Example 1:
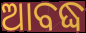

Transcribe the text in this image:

ଆବଦ୍ଧ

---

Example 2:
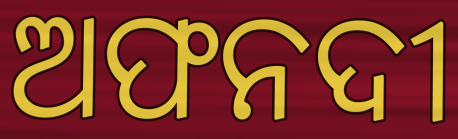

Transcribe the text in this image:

ଅଫନଦୀ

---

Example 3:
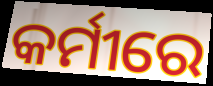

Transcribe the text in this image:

କର୍ମୀରେ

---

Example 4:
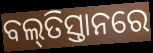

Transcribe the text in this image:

ବଲ୍‌ତିସ୍ତାନରେ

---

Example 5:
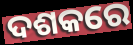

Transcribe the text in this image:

ଦଶକରେ